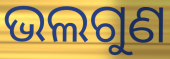
ଭଲଗୁଣ